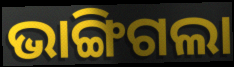
ଭାଙ୍ଗିଗଲା